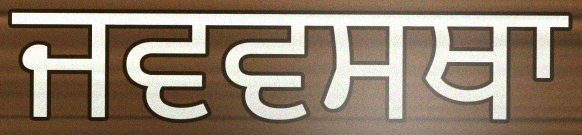
ਜਵਵਸਥਾ